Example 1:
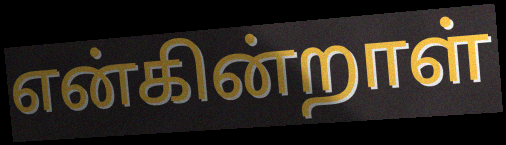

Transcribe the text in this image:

என்கின்றாள்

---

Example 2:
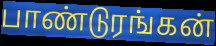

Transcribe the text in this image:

பாண்டுரங்கன்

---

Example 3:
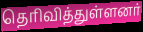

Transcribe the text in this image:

தெரிவித்துள்ளனர்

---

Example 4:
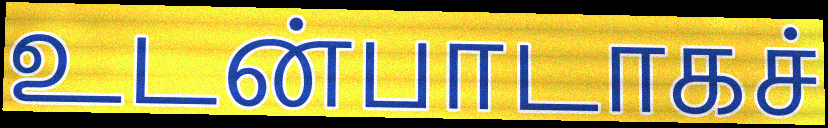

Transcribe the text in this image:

உடன்பாடாகச்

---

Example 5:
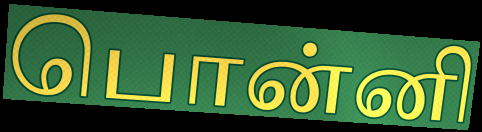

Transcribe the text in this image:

பொன்னி